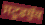
ਸਟੂਡਬੁੱਕ